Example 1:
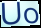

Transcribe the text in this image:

Uo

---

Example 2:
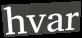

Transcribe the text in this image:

hvar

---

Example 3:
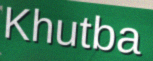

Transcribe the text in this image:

Khutba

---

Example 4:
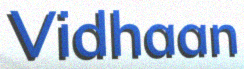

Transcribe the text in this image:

Vidhaan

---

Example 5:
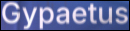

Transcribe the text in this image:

Gypaetus